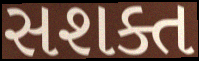
સશક્ત